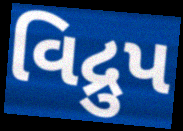
વિદ્રુપ